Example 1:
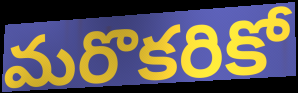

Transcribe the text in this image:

మరొకరికో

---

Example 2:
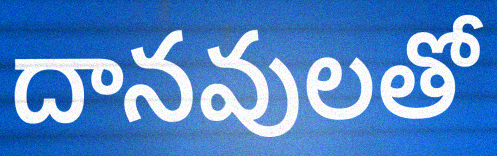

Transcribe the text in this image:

దానవులతో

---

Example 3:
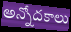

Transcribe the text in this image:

అన్నోదకాలు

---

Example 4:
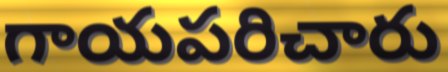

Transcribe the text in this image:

గాయపరిచారు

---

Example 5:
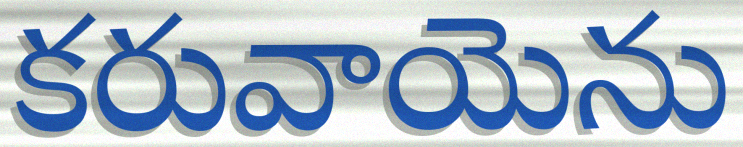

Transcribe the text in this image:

కరువాయెను